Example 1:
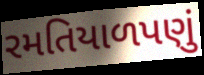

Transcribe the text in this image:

રમતિયાળપણું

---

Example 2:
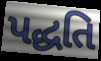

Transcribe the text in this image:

પદ્ધતિ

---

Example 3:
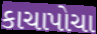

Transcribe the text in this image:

કાચાપોચા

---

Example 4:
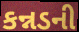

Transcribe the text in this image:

કન્નડની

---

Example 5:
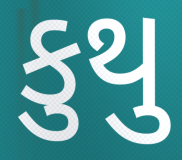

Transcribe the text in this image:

કુથુ